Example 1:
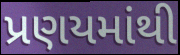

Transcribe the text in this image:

પ્રણયમાંથી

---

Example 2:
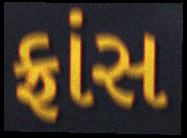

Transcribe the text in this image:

ફ્રાંસ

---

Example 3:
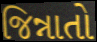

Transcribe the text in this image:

જિન્નાતો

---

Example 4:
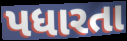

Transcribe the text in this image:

પધારતા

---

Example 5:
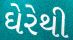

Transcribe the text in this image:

ઘેરેથી